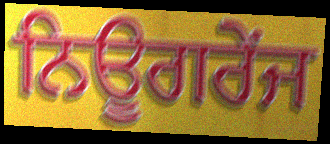
ਨਿਊਗਰੇਂਜ